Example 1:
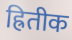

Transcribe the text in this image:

ह्रितीक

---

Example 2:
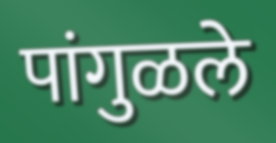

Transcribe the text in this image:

पांगुळले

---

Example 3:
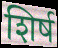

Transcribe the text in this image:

शिर्ष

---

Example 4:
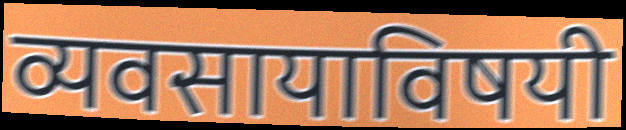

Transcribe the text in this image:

व्यवसायाविषयी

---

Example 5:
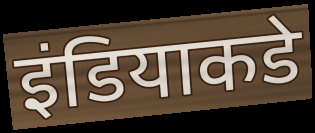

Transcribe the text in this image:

इंडियाकडे